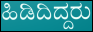
ಹಿಡಿದಿದ್ದರು